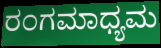
ರಂಗಮಾಧ್ಯಮ